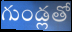
గుండ్లతో